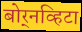
बोर्नव्हिटा